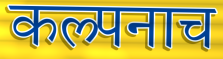
कल्पनाच